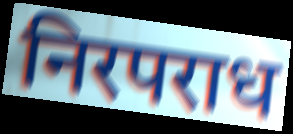
निरपराध